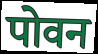
पोवन